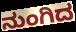
ನುಂಗಿದ